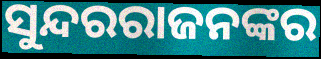
ସୁନ୍ଦରରାଜନଙ୍କର